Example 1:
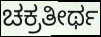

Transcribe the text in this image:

ಚಕ್ರತೀರ್ಥ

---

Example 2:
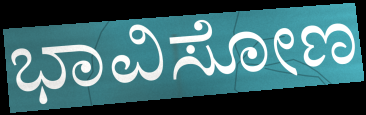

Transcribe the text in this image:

ಭಾವಿಸೋಣ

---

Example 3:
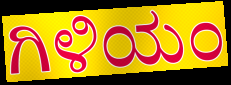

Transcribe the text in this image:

ಗಿಳಿಯಂ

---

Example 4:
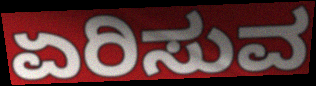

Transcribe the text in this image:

ಏರಿಸುವ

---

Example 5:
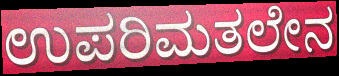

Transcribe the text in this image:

ಉಪರಿಮತಲೇನ